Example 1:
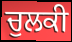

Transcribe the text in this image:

ਚੁਲਕੀ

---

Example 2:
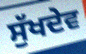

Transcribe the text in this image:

ਸੁੱਖਦੇਵ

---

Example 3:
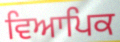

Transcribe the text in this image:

ਵਿਆਪਿਕ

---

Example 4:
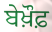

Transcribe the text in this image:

ਬੇਖ਼ੌਫ਼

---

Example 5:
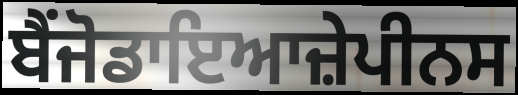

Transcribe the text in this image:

ਬੈਂਜੋਡਾਇਆਜ਼ੇਪੀਨਸ